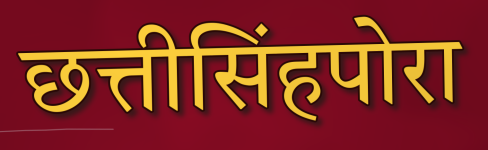
छत्तीसिंहपोरा